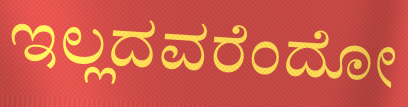
ಇಲ್ಲದವರೆಂದೋ